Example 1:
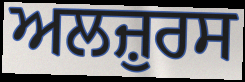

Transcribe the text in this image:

ਅਲਜ਼ੁਰਸ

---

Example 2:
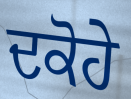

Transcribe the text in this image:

ਦਕੋਹੇ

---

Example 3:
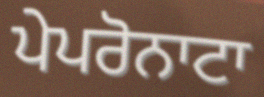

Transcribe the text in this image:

ਪੇਪਰੋਨਾਟਾ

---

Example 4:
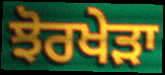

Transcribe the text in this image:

ਝੋਰਖੇੜਾ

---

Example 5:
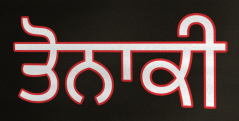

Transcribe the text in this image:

ਤੋਨਾਕੀ